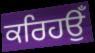
ਕਰਿਹਉਁ